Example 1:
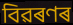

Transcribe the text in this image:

বিৱৰণৰ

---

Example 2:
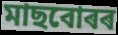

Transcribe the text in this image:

মাছবোৰৰ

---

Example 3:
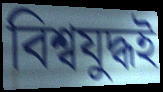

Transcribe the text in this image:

বিশ্বযুদ্ধই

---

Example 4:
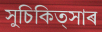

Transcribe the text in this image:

সুচিকিত্সাৰ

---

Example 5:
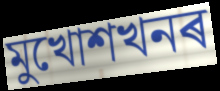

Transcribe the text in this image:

মুখোশখনৰ